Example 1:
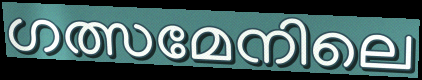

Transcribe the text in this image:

ഗത്സമേനിലെ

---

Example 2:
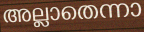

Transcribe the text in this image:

അല്ലാതെന്നാ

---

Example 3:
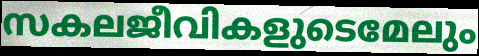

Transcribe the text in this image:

സകലജീവികളുടെമേലും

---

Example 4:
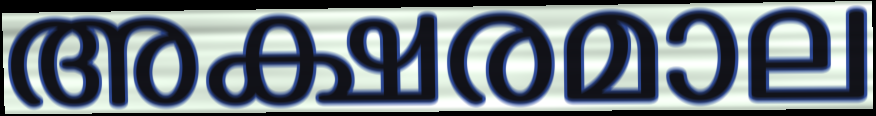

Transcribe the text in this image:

അക്ഷരമാല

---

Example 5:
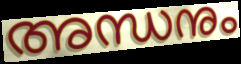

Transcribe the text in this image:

അന്ധനും